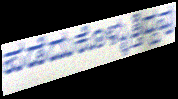
ಪಡೆದುಕೊಳ್ಳುತ್ತಿದ್ದವು